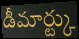
డీమార్ట్కు